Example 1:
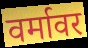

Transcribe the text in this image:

वर्मावर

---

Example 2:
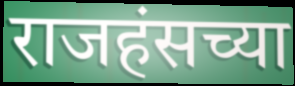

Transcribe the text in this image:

राजहंसच्या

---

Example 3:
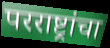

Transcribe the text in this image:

परराष्ट्रांचा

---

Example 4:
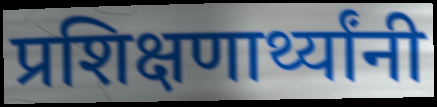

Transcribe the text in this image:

प्रशिक्षणार्थ्यांनी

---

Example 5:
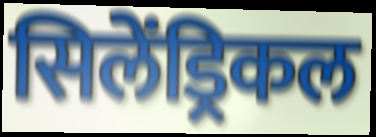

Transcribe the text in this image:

सिलेंड्रिकल